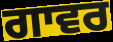
ਗਾਵਰ